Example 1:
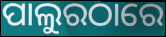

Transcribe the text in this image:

ପାଲୁରଠାରେ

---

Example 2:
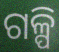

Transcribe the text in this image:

ଗଳ୍ପି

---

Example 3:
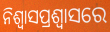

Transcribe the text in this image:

ନିଶ୍ୱାସପ୍ରଶ୍ୱାସରେ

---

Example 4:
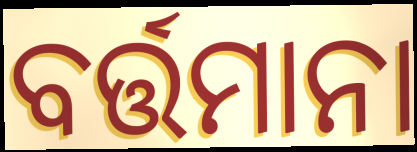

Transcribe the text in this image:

ବର୍ତ୍ତମାନା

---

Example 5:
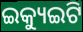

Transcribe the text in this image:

ଇକ୍ୟୁଇଟି